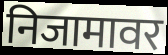
निजामावर